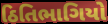
ઠિતિભાગિયો